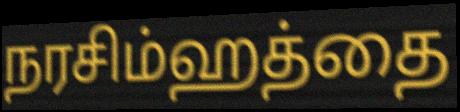
நரசிம்ஹத்தை